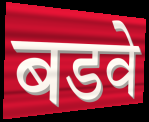
बडवे